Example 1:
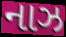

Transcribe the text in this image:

નાઝ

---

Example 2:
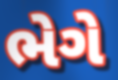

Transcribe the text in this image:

ભેગે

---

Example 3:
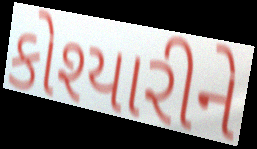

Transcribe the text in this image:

કોશ્યારીને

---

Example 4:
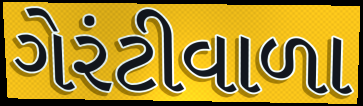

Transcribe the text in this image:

ગેરંટીવાળા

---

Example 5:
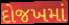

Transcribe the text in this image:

દોજખમાં